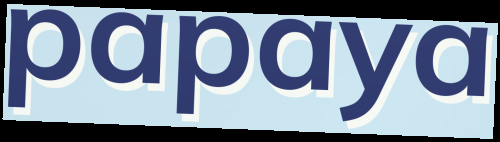
papaya